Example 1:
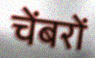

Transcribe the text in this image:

चेंबरों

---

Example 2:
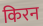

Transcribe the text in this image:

किरन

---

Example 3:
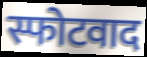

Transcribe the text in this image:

स्फोटवाद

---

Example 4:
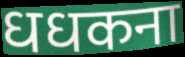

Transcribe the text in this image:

धधकना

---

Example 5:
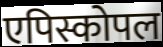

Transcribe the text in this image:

एपिस्कोपल